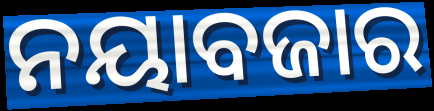
ନୟାବଜାର